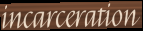
incarceration